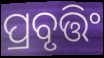
ପ୍ରବୃତ୍ତିଂ